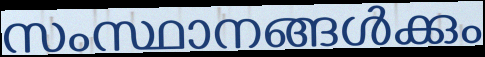
സംസ്ഥാനങ്ങൾക്കും